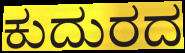
ಕುದುರದ